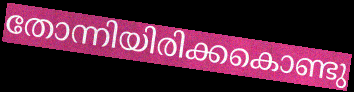
തോന്നിയിരിക്കകൊണ്ടു